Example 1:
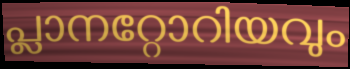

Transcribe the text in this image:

പ്ലാനറ്റോറിയവും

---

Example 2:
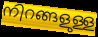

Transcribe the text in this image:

നിറങ്ങളുള്ള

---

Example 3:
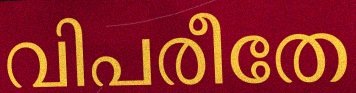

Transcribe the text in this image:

വിപരീതേ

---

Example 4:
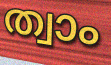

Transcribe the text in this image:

ത്വാം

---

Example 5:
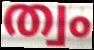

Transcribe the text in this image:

ത്വം